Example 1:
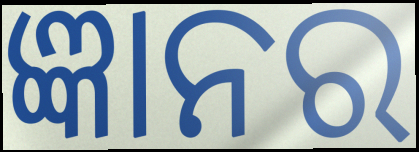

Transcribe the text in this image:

ଜ୍ଞାନର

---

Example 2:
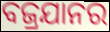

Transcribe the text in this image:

ବଜ୍ରଯାନର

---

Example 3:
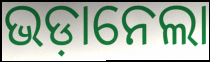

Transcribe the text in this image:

ଭଡ଼ାନେଲା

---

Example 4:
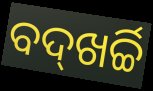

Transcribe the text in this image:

ବଦ୍‌ଖର୍ଚ୍ଚି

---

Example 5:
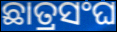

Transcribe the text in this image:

ଛାତ୍ରସଂଘ